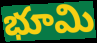
భూమి